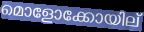
മൊളോക്കോയില്